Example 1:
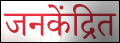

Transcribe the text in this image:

जनकेंद्रित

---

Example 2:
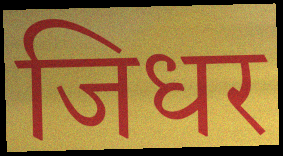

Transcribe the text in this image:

जिधर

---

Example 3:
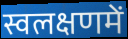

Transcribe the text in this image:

स्वलक्षणमें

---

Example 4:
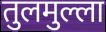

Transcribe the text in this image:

तुलमुल्ला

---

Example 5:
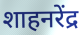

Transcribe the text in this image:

शाहनरेंद्र